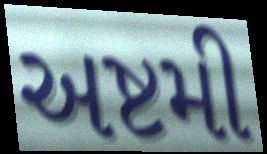
અષ્ટમી